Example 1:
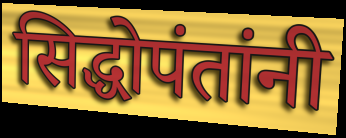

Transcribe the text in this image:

सिद्धोपंतांनी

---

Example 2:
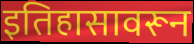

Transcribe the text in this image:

इतिहासावरून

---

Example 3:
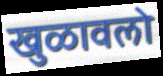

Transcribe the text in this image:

खुळावलो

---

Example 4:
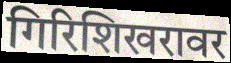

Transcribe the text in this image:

गिरिशिखरावर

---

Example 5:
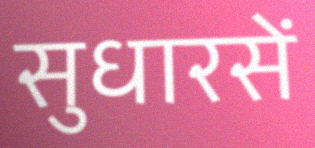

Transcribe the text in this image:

सुधारसें